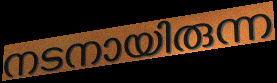
നടനായിരുന്ന